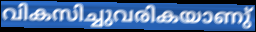
വികസിച്ചുവരികയാണു്